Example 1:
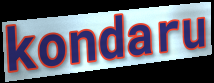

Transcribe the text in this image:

kondaru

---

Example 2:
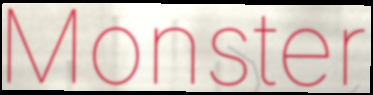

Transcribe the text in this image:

Monster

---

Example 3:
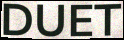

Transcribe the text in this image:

DUET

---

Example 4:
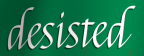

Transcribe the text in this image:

desisted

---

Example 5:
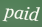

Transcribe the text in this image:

paid